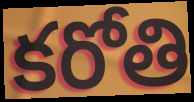
కరోతి